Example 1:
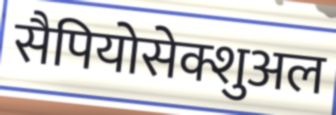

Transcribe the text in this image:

सैपियोसेक्शुअल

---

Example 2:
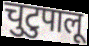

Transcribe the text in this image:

चुटुपालू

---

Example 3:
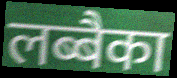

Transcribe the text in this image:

लब्बैका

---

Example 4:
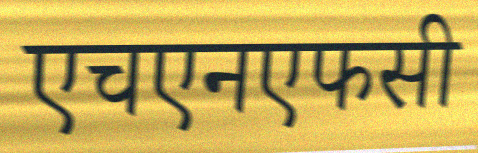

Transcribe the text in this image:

एचएनएफसी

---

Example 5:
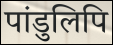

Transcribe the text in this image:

पांडुलिपि